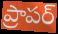
ప్రాపర్